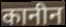
कानीन